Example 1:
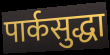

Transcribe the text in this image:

पार्कसुद्धा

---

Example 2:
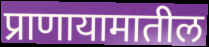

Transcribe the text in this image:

प्राणायामातील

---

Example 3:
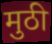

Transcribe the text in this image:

मुठी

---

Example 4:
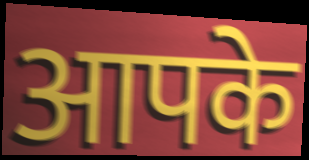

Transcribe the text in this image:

आपके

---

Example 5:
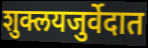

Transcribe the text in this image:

शुक्लयजुर्वेदात